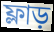
ফ্লাড়